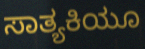
ಸಾತ್ಯಕಿಯೂ